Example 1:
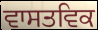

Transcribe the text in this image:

ਵਾਸਤਵਿਕ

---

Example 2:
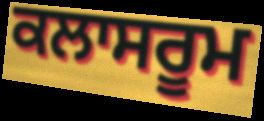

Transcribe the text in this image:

ਕਲਾਸਰੂਮ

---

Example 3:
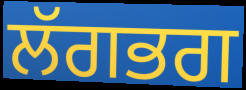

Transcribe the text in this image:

ਲੱਗਭਗ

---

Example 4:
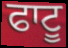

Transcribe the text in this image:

ਫਾਟੂ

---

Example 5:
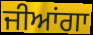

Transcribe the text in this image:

ਜੀਆਂਗਾ